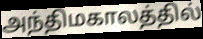
அந்திமகாலத்தில்